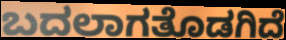
ಬದಲಾಗತೊಡಗಿದೆ